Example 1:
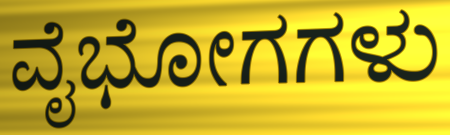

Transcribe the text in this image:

ವೈಭೋಗಗಳು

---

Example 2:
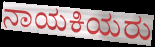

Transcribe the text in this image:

ನಾಯಕಿಯರು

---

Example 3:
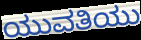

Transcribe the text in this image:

ಯುವತಿಯು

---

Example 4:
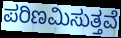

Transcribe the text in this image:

ಪರಿಣಮಿಸುತ್ತವೆ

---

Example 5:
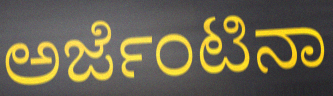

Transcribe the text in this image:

ಅರ್ಜೆಂಟಿನಾ